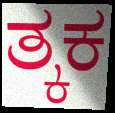
ತ್ಕಕ